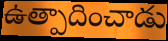
ఉత్పాదించాడు